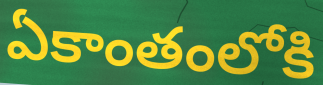
ఏకాంతంలోకి